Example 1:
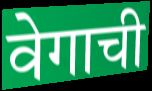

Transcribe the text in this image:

वेगाची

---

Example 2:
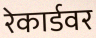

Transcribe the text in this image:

रेकार्डवर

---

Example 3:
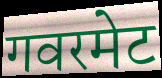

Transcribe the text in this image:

गवरमेट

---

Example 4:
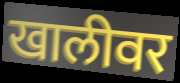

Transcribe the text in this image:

खालीवर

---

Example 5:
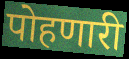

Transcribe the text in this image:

पोहणारी